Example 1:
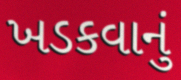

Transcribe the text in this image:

ખડકવાનું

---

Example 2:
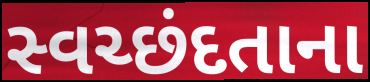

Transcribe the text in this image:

સ્વચ્છંદતાના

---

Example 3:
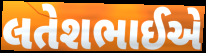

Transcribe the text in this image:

લતેશભાઈએ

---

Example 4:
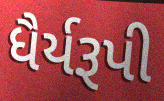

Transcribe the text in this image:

ધૈર્યરૂપી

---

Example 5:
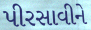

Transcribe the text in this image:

પીરસાવીને